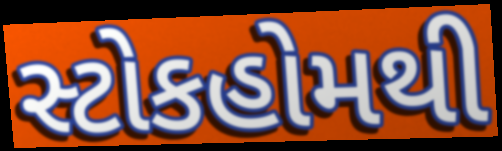
સ્ટોકહોમથી